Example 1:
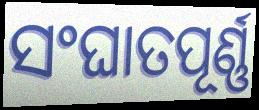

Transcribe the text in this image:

ସଂଘାତପୂର୍ଣ୍ଣ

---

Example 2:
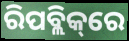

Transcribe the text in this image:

ରିପବ୍ଲିକ୍‌ରେ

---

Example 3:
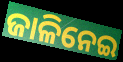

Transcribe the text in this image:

ଜାଳିନେଇ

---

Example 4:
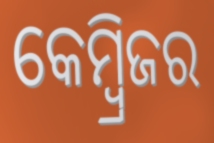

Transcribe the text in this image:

କେମ୍ବ୍ରିଜର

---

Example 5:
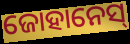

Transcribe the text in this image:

ଜୋହାନେସ୍